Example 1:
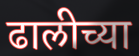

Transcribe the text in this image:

ढालीच्या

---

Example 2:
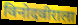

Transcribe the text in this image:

विनोदवीराला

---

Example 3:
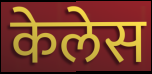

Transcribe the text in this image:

केलेस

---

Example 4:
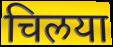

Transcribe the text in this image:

चिलया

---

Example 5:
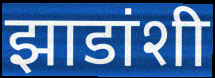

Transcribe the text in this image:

झाडांशी